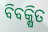
ବିବକ୍ଷିତ